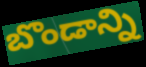
బొండాన్ని